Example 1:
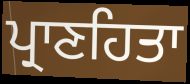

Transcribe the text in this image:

ਪ੍ਰਾਣਹਿਤਾ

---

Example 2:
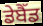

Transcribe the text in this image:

ਡੇਬੈੱਡ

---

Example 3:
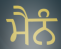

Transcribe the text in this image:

ਮੈਨੰ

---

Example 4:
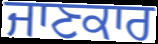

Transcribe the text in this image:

ਜਾਣਕਾਰ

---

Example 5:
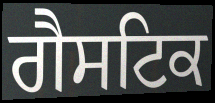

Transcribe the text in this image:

ਗੈਸਟਿਕ